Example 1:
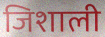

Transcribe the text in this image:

जिशाली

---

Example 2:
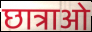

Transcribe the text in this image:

छात्राओ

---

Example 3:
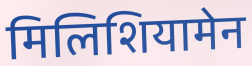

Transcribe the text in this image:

मिलिशियामेन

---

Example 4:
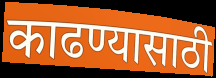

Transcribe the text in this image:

काढण्यासाठी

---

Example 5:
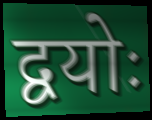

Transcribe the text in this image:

द्वयोः